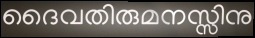
ദൈവതിരുമനസ്സിനു